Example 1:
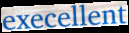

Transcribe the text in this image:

execellent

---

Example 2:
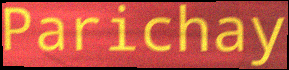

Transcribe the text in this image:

Parichay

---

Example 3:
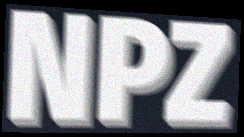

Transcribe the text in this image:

NPZ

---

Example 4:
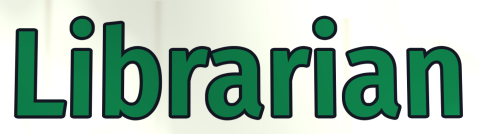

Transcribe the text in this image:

Librarian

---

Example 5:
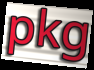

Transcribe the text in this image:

pkg